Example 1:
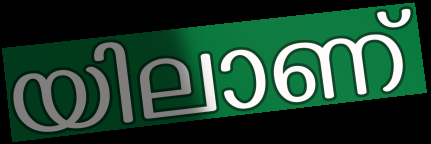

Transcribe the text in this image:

യിലാണ്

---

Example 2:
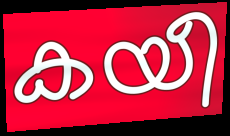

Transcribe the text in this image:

കയീ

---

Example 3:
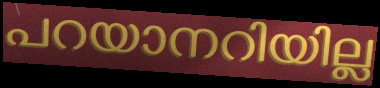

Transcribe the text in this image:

പറയാനറിയില്ല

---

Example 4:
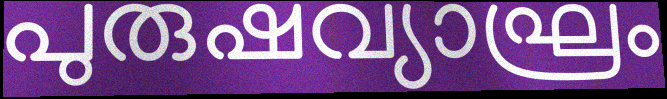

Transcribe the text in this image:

പുരുഷവ്യാഘ്രം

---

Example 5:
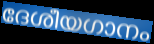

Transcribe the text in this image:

ദേശീയഗാനം